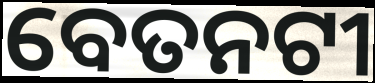
ବେତନଟୀ